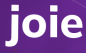
joie